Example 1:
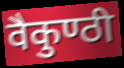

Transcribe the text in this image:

वैकुण्ठी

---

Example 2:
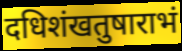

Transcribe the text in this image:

दधिशंखतुषाराभं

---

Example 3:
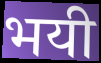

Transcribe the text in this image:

भयी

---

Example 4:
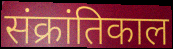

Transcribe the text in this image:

संक्रांतिकाल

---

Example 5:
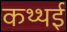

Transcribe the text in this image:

कथ्थई